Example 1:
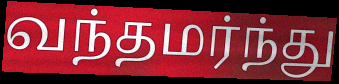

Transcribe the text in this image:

வந்தமர்ந்து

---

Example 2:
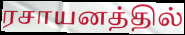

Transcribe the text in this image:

ரசாயனத்தில்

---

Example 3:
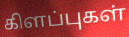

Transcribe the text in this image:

கிளப்புகள்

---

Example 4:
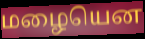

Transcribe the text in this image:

மழையென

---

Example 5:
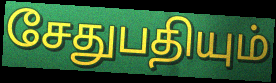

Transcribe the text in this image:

சேதுபதியும்